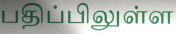
பதிப்பிலுள்ள